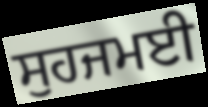
ਸੁਹਜਮਈ